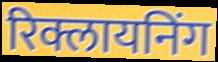
रिक्लायनिंग